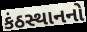
કંઠસ્થાનનો